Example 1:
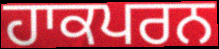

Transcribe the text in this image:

ਹਾਕਪਰਨ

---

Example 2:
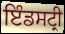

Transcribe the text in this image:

ਇੰਡਸਟ੍ਰੀ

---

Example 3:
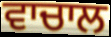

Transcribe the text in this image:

ਵਾਚਾਲ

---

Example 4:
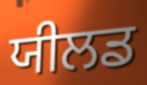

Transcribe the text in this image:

ਯੀਲਡ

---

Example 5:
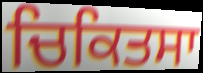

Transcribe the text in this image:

ਚਿਕਿਤਸਾ